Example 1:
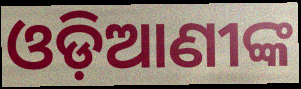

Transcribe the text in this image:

ଓଡ଼ିଆଣୀଙ୍କ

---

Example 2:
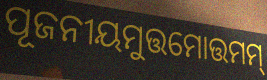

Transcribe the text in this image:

ପୂଜନୀୟମୁତ୍ତମୋତ୍ତମମ୍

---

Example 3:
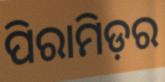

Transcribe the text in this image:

ପିରାମିଡ଼ର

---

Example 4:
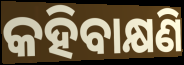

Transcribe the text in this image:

କହିବାକ୍ଷଣି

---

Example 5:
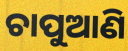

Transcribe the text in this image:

ଚାପୁଆଣି